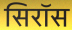
सिरॉस